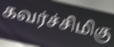
கவர்ச்சிமிகு